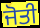
ਜੋਤੀ